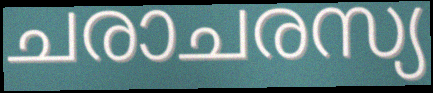
ചരാചരസ്യ